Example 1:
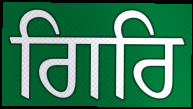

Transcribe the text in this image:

ਗਿਰਿ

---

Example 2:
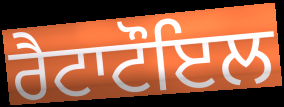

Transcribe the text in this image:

ਰੈਟਾਟੌਇਲ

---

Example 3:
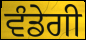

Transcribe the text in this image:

ਵੰਡੇਗੀ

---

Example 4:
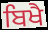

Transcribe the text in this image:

ਬਿਖੈ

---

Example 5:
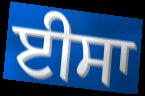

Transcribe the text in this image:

ਈਸਾ